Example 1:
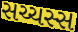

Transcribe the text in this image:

સચ્ચસ્સ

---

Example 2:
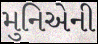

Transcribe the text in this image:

મુનિએની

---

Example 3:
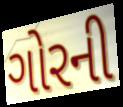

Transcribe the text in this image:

ગોરની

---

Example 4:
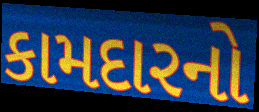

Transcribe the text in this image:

કામદારનો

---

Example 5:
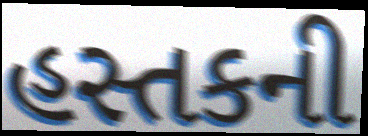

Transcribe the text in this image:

હસ્તકની